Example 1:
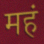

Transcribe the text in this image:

महं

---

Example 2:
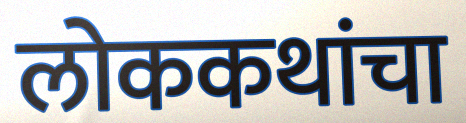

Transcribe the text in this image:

लोककथांचा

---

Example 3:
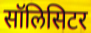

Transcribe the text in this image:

सॉलिसिटर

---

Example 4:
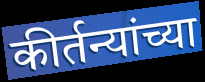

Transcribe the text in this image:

कीर्तन्यांच्या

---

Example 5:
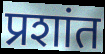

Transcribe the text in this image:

प्रशांत